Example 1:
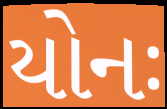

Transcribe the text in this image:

યોનઃ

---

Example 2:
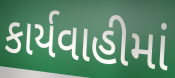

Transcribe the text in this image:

કાર્યવાહીમાં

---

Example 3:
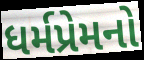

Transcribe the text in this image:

ધર્મપ્રેમનો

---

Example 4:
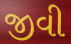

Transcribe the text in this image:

જીવી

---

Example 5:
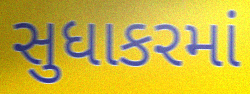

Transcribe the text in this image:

સુધાકરમાં